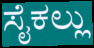
ಸೈಕಲ್ಲು